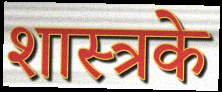
शास्त्रके